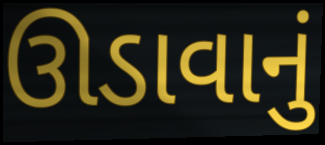
ઊડાવાનું